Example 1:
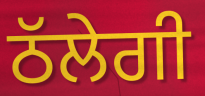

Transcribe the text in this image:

ਠੱਲੇਗੀ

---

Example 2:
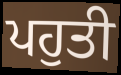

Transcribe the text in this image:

ਪਹੁਤੀ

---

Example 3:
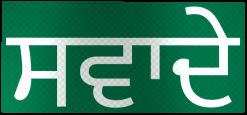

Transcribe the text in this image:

ਸਵਾਦੇ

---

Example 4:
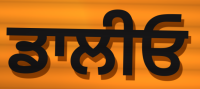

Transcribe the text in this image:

ਡਾਲੀਓ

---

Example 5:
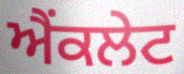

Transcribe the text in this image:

ਐਂਕਲੇਟ